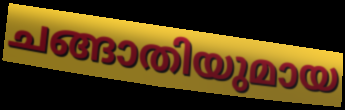
ചങ്ങാതിയുമായ